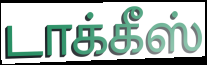
டாக்கீஸ்